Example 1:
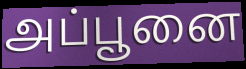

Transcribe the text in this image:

அப்பூனை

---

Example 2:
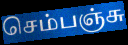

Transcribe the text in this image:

செம்பஞ்சு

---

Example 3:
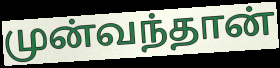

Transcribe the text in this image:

முன்வந்தான்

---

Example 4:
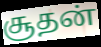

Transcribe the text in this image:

சூதன்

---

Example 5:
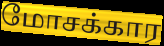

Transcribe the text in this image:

மோசக்கார